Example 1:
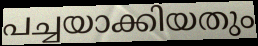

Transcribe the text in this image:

പച്ചയാക്കിയതും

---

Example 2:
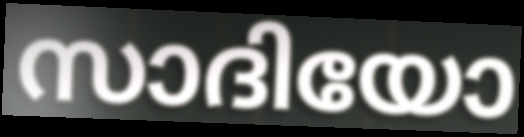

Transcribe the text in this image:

സാദിയോ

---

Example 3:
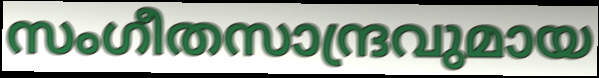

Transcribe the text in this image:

സംഗീതസാന്ദ്രവുമായ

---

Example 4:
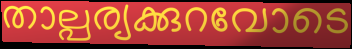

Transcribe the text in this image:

താല്പര്യക്കുറവോടെ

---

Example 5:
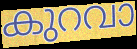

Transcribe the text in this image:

കുറവാ